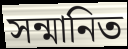
সন্মানিত